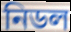
নিডল